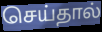
செய்தால்